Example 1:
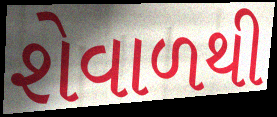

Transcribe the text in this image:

શેવાળથી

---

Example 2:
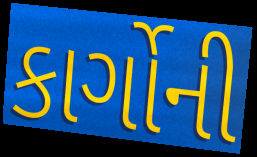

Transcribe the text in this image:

કાર્ગોની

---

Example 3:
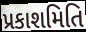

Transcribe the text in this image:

પ્રકાશમિતિ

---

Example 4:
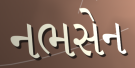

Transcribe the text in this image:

નભસેન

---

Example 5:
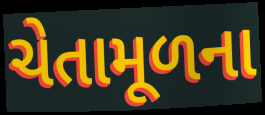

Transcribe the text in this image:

ચેતામૂળના